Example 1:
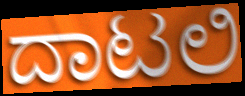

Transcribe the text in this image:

ದಾಟಲಿ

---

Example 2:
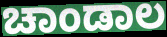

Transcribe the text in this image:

ಚಾಂಡಾಲ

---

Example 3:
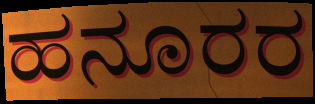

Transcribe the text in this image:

ಹನೂರರ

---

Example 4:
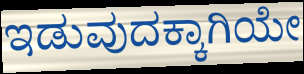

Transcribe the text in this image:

ಇಡುವುದಕ್ಕಾಗಿಯೇ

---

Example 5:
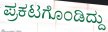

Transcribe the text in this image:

ಪ್ರಕಟಗೊಂಡಿದ್ದು